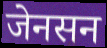
जेनसन